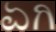
ಏಗಿ